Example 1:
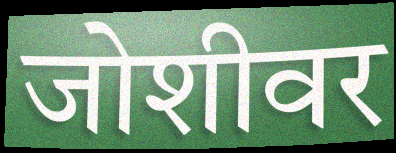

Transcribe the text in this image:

जोशीवर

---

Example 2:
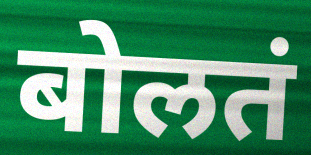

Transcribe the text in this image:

बोलतं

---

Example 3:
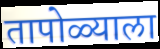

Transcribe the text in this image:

तापोळ्याला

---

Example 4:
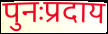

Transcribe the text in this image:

पुनःप्रदाय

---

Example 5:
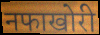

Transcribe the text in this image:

नफाखोरी